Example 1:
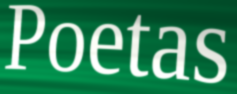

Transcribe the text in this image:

Poetas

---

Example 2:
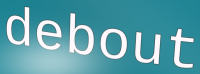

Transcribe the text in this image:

debout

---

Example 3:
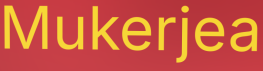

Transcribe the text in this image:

Mukerjea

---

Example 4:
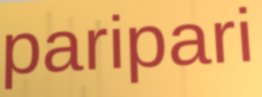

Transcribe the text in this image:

paripari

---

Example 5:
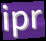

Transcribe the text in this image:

ipr